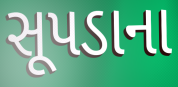
સૂપડાના